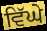
ਵਿੱਘੇ